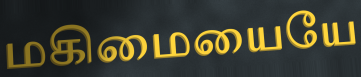
மகிமையையே